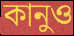
কানুও